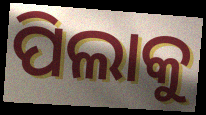
ପିଲାକୁ